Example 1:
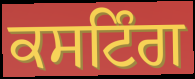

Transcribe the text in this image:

ਕਸਟਿੰਗ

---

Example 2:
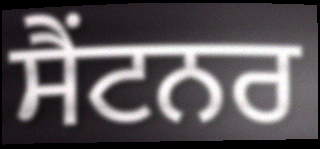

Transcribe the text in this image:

ਸੈਂਟਨਰ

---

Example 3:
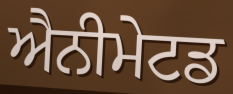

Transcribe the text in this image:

ਐਨੀਮੇਟਡ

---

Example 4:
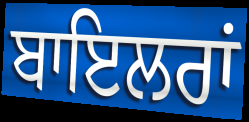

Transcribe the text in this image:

ਬਾਇਲਰਾਂ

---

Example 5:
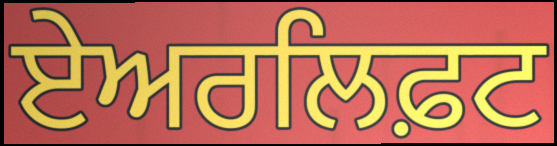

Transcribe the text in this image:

ਏਅਰਲਿਫ਼ਟ